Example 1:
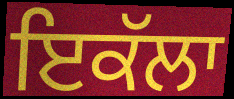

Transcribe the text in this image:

ਇਕੱਲਾ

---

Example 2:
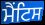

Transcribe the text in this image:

ਮੈਂਟਿਸ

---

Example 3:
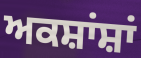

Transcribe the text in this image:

ਅਕਸ਼ਾਂਸ਼ਾਂ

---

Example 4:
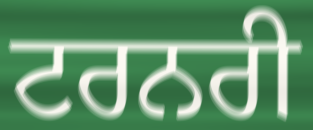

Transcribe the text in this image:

ਟਰਨਰੀ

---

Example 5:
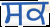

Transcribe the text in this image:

ਸਕ